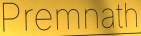
Premnath